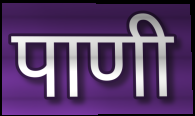
पाणी